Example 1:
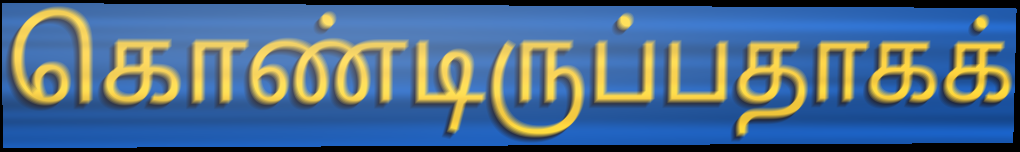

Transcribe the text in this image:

கொண்டிருப்பதாகக்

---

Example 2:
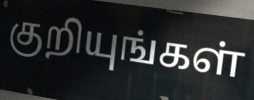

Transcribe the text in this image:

குறியுங்கள்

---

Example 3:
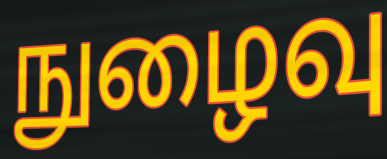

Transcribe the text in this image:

நுழைவு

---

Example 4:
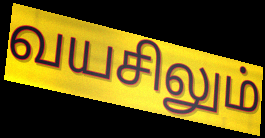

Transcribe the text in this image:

வயசிலும்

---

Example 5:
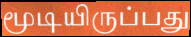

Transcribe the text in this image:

மூடியிருப்பது